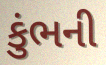
કુંભની